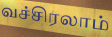
வச்சிரலாம்